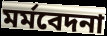
মর্মবেদনা